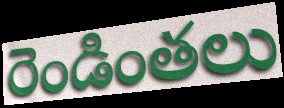
రెండింతలు